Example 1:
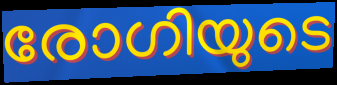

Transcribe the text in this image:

രോഗിയുടെ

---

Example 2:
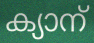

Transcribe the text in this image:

ക്യാന്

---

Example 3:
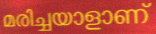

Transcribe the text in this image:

മരിച്ചയാളാണ്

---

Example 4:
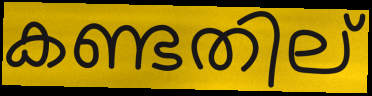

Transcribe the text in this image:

കണ്ടതില്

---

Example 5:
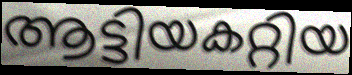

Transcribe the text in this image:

ആട്ടിയകറ്റിയ